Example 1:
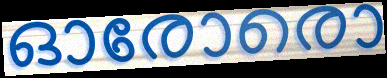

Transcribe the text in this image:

ഓരോരൊ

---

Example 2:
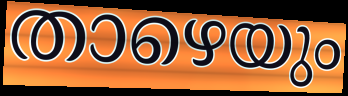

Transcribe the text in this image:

താഴെയും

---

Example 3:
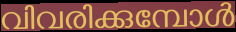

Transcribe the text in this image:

വിവരിക്കുമ്പോൾ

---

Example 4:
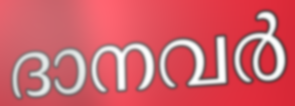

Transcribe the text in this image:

ദാനവർ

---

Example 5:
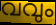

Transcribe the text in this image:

വവും